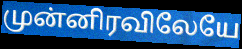
முன்னிரவிலேயே